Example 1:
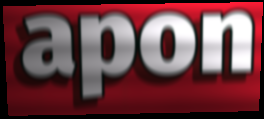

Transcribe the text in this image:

apon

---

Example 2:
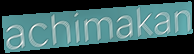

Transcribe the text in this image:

achimakan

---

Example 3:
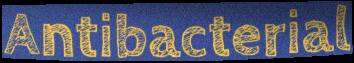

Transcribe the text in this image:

Antibacterial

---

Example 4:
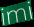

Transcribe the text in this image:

imi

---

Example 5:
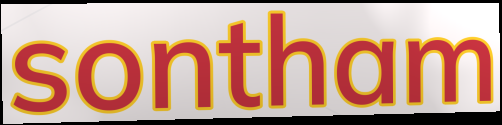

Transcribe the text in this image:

sontham